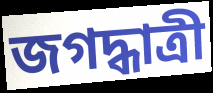
জগদ্ধাত্রী